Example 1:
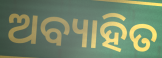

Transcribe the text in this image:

ଅବ୍ୟାହିତ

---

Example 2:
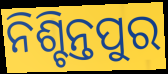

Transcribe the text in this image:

ନିଶ୍ଚିନ୍ତପୁର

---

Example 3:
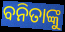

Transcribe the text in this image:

ବନିତାଙ୍କୁ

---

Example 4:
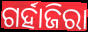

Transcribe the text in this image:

ଗର୍ହାଜିରା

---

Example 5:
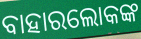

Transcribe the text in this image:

ବାହାରଲୋକଙ୍କ